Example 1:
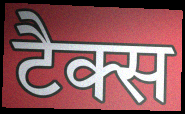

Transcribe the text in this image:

टैक्‍स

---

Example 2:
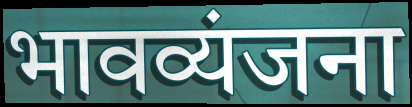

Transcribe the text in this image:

भावव्यंजना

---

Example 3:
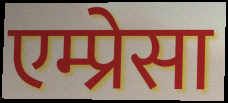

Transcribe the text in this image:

एम्प्रेसा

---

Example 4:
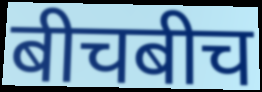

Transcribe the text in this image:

बीचबीच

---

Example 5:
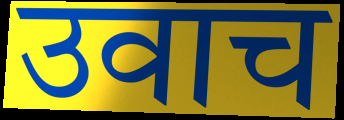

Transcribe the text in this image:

उवाच